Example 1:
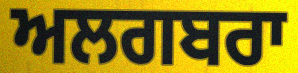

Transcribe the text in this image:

ਅਲਗਬਰਾ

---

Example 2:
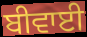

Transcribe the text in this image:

ਬੀਵਾਈ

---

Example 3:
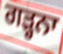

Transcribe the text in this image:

ਗੜ੍ਹਨਾ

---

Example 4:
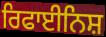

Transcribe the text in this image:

ਰਿਫਾਈਨਿਸ਼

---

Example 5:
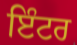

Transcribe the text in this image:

ਇੰਟਰ